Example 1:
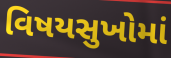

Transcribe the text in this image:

વિષયસુખોમાં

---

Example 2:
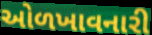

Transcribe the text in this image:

ઓળખાવનારી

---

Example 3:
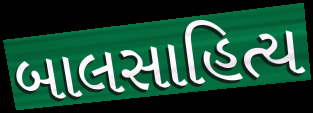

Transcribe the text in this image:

બાલસાહિત્ય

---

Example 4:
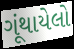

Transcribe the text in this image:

ગૂંથાયેલો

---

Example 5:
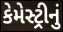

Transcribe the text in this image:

કેમેસ્ટ્રીનું